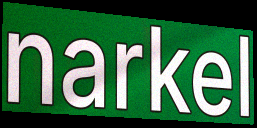
narkel